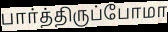
பார்த்திருப்போமா